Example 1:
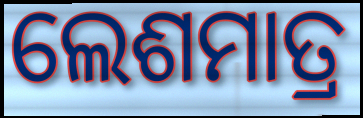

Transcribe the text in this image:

ଲେଶମାତ୍ର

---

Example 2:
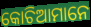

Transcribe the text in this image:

କୋଚିଆମାନେ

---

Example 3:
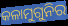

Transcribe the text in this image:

କଳାମୁଗୁନିର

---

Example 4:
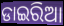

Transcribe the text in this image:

ଡାଇରିଆ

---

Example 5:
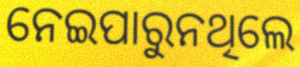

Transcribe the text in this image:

ନେଇପାରୁନଥିଲେ